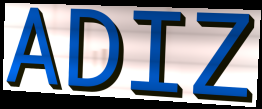
ADIZ